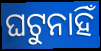
ଘଟୁନାହିଁ